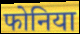
फोनिया